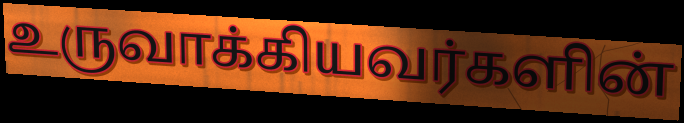
உருவாக்கியவர்களின்